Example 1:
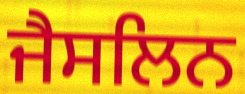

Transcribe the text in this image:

ਜੈਸਲਿਨ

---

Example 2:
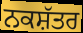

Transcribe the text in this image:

ਨਕਸ਼ੱਤਰ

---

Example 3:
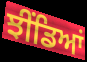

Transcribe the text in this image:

ਝੀਂਡਿਆਂ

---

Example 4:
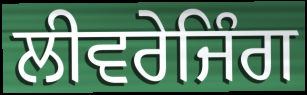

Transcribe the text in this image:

ਲੀਵਰੇਜਿੰਗ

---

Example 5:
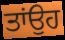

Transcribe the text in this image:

ਤਾਂਉਹ